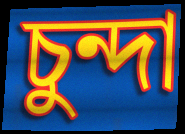
চুন্দা